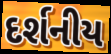
દર્શનીય